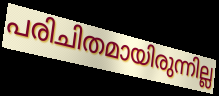
പരിചിതമായിരുന്നില്ല